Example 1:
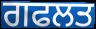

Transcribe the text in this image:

ਗਫਲਤ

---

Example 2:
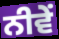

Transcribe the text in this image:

ਨੀਵੇਂ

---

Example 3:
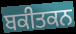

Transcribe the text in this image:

ਬਕੀਤਕਨ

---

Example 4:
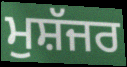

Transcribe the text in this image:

ਮੁਸ਼ੱਜਰ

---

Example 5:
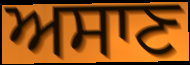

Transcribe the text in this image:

ਅਸਾਣ